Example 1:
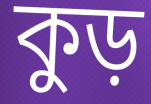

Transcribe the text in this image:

কুড়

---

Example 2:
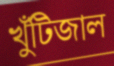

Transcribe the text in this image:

খুঁটিজাল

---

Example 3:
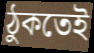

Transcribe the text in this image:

ঠুকতেই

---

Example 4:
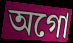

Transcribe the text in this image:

অগো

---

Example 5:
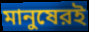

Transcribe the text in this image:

মানুষেরই